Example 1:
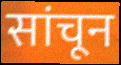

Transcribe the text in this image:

सांचून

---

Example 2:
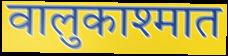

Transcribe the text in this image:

वालुकाश्मात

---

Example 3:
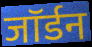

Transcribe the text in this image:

जॉर्डन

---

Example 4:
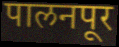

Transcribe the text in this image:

पालनपूर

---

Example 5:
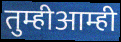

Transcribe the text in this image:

तुम्हीआम्ही